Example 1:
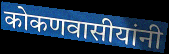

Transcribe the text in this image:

कोकणवासीयांनी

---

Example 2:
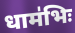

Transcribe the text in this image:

धाम॑भिः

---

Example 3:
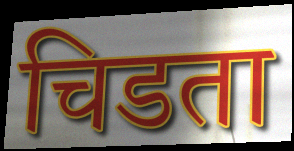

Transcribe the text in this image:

चिडता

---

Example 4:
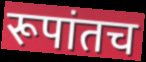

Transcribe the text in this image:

रूपांतच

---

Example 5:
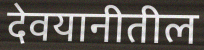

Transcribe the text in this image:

देवयानीतील